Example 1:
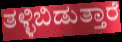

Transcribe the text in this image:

ತಳ್ಳಿಬಿಡುತ್ತಾರೆ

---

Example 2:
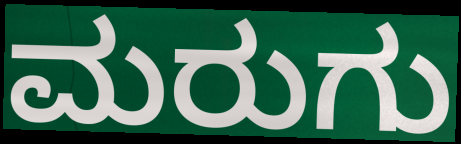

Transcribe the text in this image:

ಮರುಗು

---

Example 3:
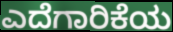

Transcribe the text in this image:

ಎದೆಗಾರಿಕೆಯ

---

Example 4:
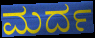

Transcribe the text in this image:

ಮರ್ದ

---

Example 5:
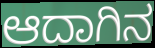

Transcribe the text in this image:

ಆದಾಗಿನ